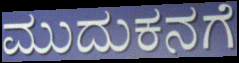
ಮುದುಕನಗೆ